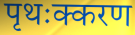
पृथःक्करण